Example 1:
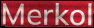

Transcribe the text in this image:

Merkol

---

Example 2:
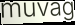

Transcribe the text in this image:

muvag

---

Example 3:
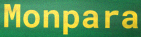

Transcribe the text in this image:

Monpara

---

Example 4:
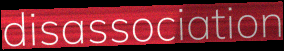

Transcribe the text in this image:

disassociation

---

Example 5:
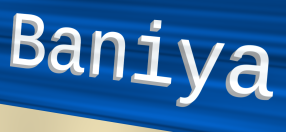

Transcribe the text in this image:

Baniya